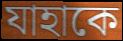
যাহাকে